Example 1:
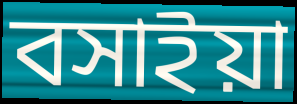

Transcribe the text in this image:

বসাইয়া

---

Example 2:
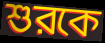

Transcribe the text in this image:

শুরকে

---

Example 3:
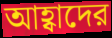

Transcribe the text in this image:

আহ্বাদের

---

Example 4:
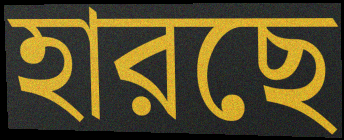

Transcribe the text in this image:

হারছে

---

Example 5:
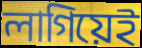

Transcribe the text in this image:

লাগিয়েই